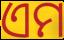
ଏମ